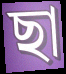
ছা